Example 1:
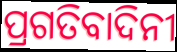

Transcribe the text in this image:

ପ୍ରଗତିବାଦିନୀ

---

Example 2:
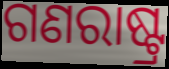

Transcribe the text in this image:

ଗଣରାଷ୍ଟ୍ର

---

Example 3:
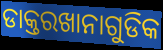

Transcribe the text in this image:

ଡାକ୍ତରଖାନାଗୁଡିକ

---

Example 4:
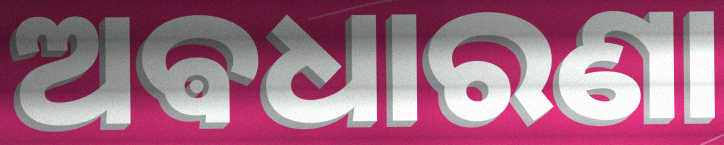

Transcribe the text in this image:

ଅଵଧାରଣା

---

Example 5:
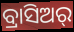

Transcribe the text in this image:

ବ୍ରାସିଅର୍